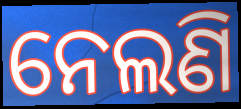
ନେଲଣି